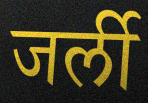
जर्ली